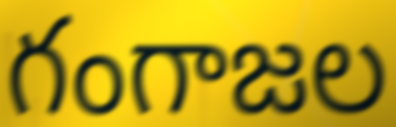
గంగాజల